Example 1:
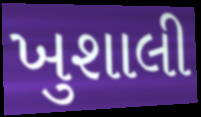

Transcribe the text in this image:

ખુશાલી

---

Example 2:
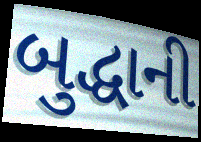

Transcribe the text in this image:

બુદ્ધાની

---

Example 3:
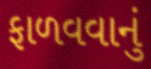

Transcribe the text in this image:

ફાળવવાનું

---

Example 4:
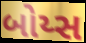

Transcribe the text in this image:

બોય્સ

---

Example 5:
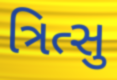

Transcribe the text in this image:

ત્રિત્સુ